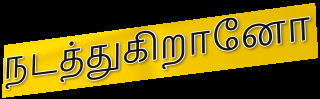
நடத்துகிறானோ